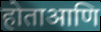
होताआणि